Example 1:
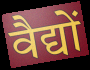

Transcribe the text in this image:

वैद्यों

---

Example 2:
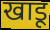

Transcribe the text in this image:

खाडू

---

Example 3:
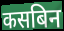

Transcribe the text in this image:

कसबिन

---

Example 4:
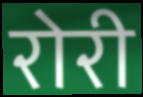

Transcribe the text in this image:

रोरी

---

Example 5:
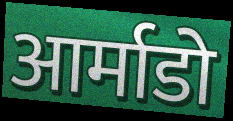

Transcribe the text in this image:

आर्माडो